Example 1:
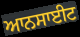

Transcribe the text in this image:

ਆਨਸਾਈਟ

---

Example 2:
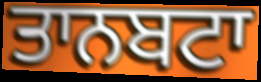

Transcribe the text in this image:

ਤਾਨਬਟਾ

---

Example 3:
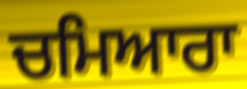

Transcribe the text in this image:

ਚਮਿਆਰਾ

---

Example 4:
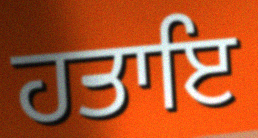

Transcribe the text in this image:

ਹਤਾਇ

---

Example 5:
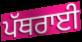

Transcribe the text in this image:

ਪੱਥਰਾਈ